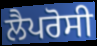
ਲੈਪਰੋਸੀ